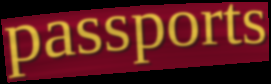
passports